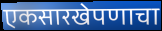
एकसारखेपणाचा